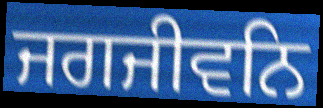
ਜਗਜੀਵਨਿ